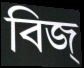
বিজ্